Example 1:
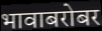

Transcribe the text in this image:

भावाबरोबर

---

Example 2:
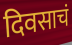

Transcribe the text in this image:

दिवसाचं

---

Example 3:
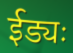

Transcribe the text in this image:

ईड्यः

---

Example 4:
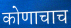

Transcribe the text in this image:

कोणाचाच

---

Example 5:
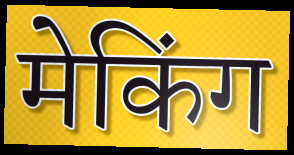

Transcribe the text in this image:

मेकिंग